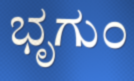
ಭೃಗುಂ